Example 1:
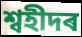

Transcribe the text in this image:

শ্বহীদৰ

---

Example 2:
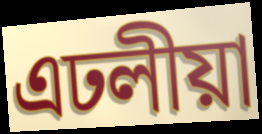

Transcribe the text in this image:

এঢলীয়া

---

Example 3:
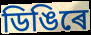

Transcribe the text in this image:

ডিঙিৰে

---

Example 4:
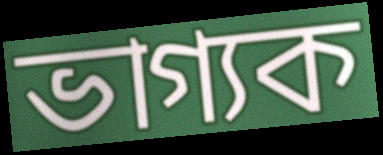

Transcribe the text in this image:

ভাগ্যক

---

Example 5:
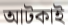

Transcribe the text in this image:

আটকাই